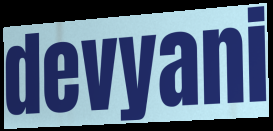
devyani